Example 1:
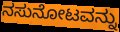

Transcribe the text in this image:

ನಸುನೋಟವನ್ನು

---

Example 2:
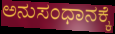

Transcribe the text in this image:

ಅನುಸಂಧಾನಕ್ಕೆ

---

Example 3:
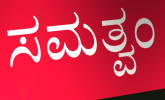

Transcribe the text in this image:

ಸಮತ್ವಂ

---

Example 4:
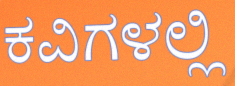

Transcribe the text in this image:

ಕವಿಗಳಲ್ಲಿ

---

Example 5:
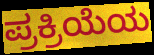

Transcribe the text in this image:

ಪ್ರಕ್ರಿಯೆಯ